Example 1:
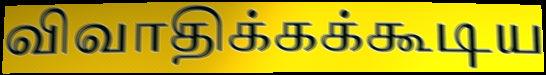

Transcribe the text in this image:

விவாதிக்கக்கூடிய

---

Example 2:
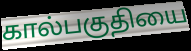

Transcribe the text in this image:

கால்பகுதியை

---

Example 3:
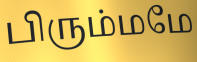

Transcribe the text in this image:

பிரும்மமே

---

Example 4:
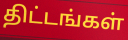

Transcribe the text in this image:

திட்டங்கள்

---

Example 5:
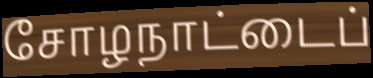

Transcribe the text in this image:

சோழநாட்டைப்